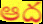
ఆద